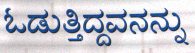
ಓಡುತ್ತಿದ್ದವನನ್ನು